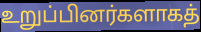
உறுப்பினர்களாகத்